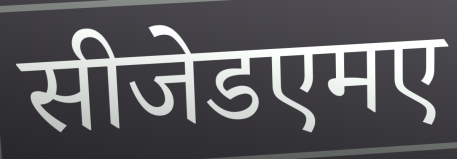
सीजेडएमए